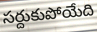
సర్దుకుపోయేది